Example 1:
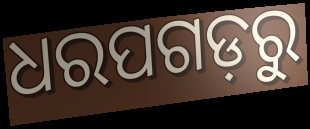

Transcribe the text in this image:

ଧରପଗଡ଼ରୁ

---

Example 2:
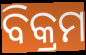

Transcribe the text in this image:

ବିକ୍ରମ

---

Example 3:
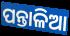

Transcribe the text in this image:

ପନ୍ତାଳିଆ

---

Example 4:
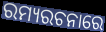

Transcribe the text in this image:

ରମ୍ୟରଚନାରେ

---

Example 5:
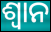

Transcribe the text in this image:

ଶ୍ୱାନ